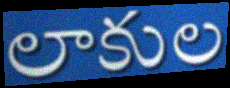
లాకుల